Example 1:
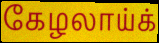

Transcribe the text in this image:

கேழலாய்க்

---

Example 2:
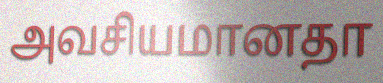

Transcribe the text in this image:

அவசியமானதா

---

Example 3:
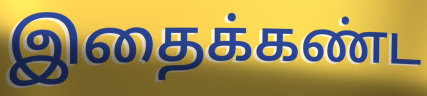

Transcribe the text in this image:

இதைக்கண்ட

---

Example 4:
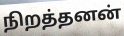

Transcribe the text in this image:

நிறத்தனன்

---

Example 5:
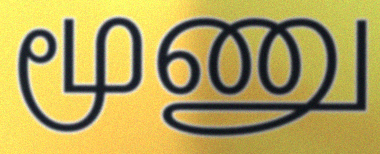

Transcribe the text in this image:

மூணு